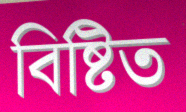
বিষ্টিত